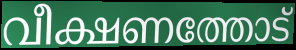
വീക്ഷണത്തോട്